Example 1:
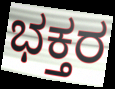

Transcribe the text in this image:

ಭಕ್ತರ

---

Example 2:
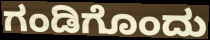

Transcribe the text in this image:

ಗಂಡಿಗೊಂದು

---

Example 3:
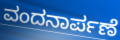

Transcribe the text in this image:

ವಂದನಾರ್ಪಣೆ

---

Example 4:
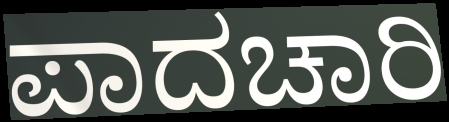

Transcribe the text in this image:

ಪಾದಚಾರಿ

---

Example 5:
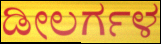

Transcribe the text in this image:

ಡೀಲರ್ಗಳ